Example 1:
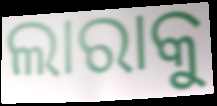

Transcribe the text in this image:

ଲାରାକୁ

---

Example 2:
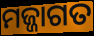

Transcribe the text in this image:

ମଜ୍ଜାଗତ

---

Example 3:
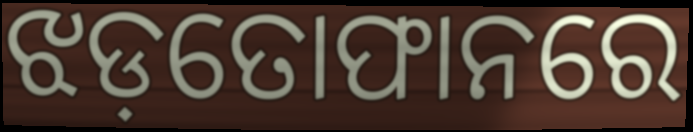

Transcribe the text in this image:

ଝଡ଼ତୋଫାନରେ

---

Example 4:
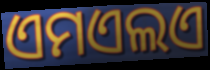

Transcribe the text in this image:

ଏମଏଲଏ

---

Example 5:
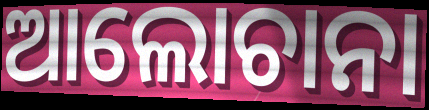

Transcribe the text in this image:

ଆଲୋଚାନା